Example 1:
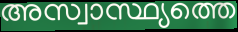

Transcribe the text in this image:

അസ്വാസ്ഥ്യത്തെ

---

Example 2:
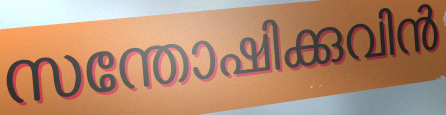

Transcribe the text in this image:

സന്തോഷിക്കുവിൻ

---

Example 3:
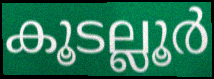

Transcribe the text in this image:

കൂടല്ലൂർ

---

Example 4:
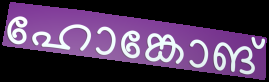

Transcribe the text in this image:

ഹോങ്കോങ്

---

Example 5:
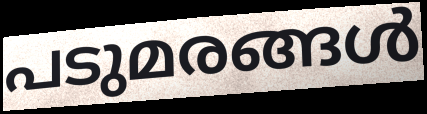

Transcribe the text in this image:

പടുമരങ്ങൾ